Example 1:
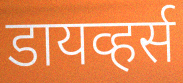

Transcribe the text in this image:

डायव्हर्स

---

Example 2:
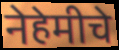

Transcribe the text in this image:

नेहेमीचे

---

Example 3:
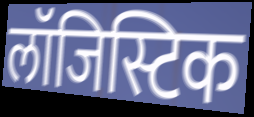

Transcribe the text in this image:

लॉजिस्टिक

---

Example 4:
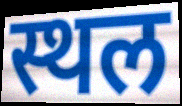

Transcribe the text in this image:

स्थल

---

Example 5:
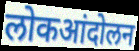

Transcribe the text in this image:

लोकआंदोलन